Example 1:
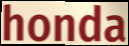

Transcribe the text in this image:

honda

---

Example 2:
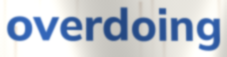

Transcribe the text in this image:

overdoing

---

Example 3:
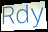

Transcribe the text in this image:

Rdy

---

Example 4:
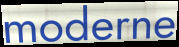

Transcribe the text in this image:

moderne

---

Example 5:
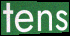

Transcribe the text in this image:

tens